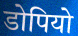
डोपियो